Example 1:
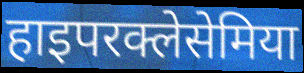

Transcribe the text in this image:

हाइपरक्लेसेमिया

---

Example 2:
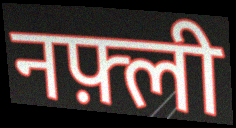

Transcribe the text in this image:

नफ़्ली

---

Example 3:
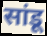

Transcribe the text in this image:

सांडू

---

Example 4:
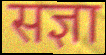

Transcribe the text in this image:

सज्ञा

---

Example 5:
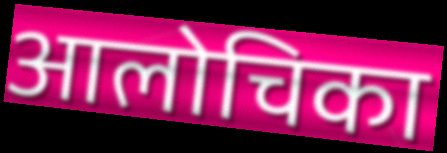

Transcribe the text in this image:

आलोचिका